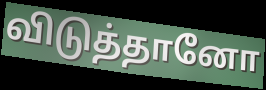
விடுத்தானோ